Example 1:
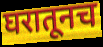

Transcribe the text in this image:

घरातूनच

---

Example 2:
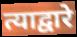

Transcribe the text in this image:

त्याद्वारे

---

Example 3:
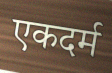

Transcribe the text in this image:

एकदर्म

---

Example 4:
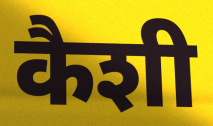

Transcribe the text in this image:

कैशी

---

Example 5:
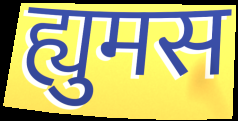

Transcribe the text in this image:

ह्युमस